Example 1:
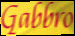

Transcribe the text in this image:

Gabbro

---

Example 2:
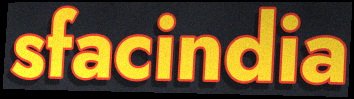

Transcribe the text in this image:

sfacindia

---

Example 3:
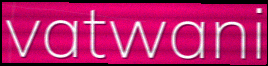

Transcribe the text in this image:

vatwani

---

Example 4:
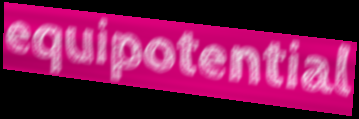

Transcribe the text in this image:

equipotential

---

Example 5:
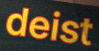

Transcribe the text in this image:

deist